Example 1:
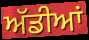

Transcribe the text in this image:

ਅੱਡੀਆਂ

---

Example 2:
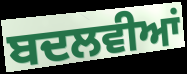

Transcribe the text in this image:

ਬਦਲਵੀਆਂ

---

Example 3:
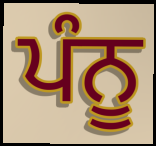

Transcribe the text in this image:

ਪੰਨੂ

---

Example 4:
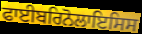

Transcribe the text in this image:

ਫਾਈਬਰਿਨੋਲਾਇਸਿਸ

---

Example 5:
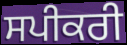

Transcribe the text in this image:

ਸਪੀਕਰੀ